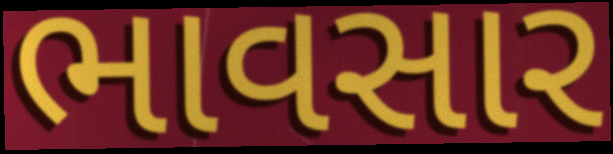
ભાવસાર